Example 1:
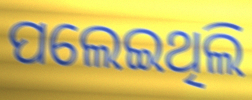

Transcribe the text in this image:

ପଲେଇଥିଲି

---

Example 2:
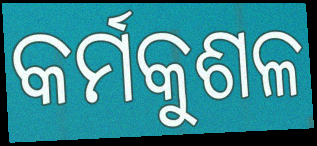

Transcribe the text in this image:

କର୍ମକୁଶଳ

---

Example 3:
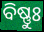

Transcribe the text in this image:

ବିଷ୍ଣୁଃ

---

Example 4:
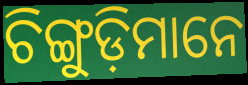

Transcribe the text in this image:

ଚିଙ୍ଗୁଡ଼ିମାନେ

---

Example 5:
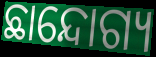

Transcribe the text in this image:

ଛାନ୍ଦୋଗ୍ୟ